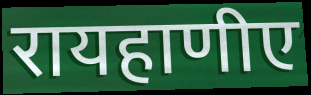
रायहाणीए